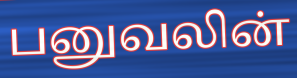
பனுவலின்